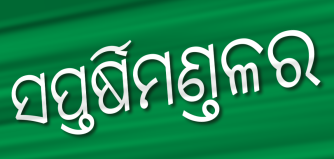
ସପ୍ତର୍ଷିମଣ୍ତଳର